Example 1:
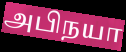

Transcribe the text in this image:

அபிநயா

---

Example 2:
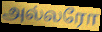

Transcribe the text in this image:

அல்லரோ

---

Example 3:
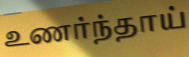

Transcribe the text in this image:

உணர்ந்தாய்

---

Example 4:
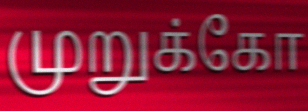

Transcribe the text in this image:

முறுக்கோ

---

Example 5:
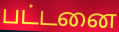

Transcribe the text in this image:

பட்டனை